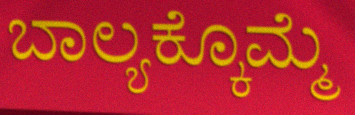
ಬಾಲ್ಯಕ್ಕೊಮ್ಮೆ